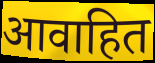
आवाहित